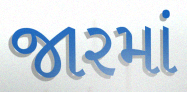
જારમાં